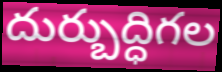
దుర్బుద్ధిగల